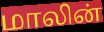
மாலின்